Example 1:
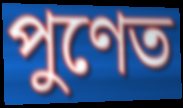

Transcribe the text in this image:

পুণেত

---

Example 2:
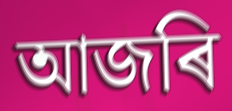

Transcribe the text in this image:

আজৰি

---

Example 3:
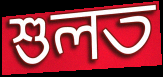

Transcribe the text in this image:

শুলত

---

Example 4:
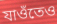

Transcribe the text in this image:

যাওঁতেও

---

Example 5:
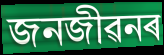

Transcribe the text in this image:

জনজীৱনৰ